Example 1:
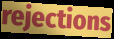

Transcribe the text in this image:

rejections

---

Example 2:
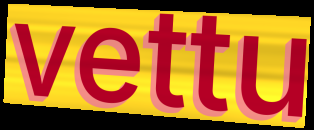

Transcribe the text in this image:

vettu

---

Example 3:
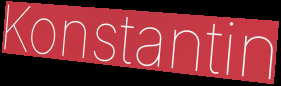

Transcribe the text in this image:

Konstantin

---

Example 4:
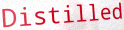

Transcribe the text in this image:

Distilled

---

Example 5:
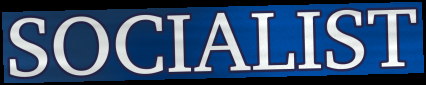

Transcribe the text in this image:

SOCIALIST